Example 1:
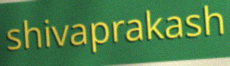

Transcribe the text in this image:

shivaprakash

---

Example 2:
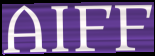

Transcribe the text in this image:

AIFF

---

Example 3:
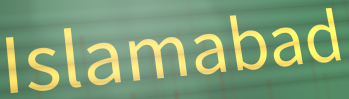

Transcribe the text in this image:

Islamabad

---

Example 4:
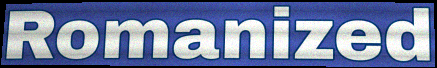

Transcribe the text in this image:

Romanized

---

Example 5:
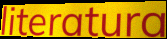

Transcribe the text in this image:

literatura